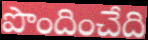
పొందించేది